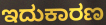
ಇದುಕಾರಣ